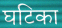
घटिका